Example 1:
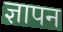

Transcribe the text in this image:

ज्ञापन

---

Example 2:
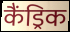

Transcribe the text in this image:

कैंड्रिक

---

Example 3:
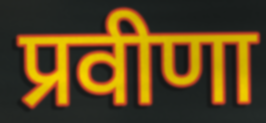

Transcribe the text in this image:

प्रवीणा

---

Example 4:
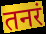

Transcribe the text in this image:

तनरं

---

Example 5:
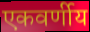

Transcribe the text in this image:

एकवर्णीय